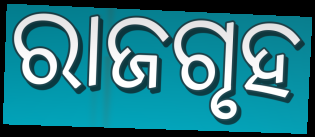
ରାଜଗୃହ